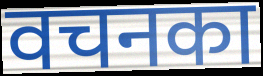
वचनका